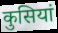
कुसियां